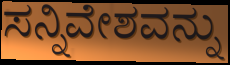
ಸನ್ನಿವೇಶವನ್ನು